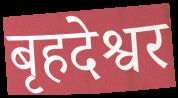
बृहदेश्वर